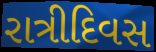
રાત્રીદિવસ